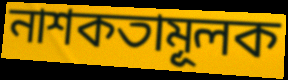
নাশকতামূলক